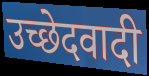
उच्छेदवादी